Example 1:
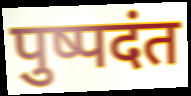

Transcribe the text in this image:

पुष्पदंत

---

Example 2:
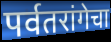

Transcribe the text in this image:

पर्वतरांगेचा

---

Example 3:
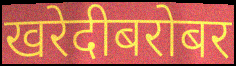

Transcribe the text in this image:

खरेदीबरोबर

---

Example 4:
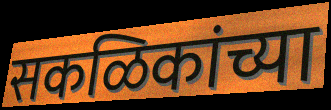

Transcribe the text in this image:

सकळिकांच्या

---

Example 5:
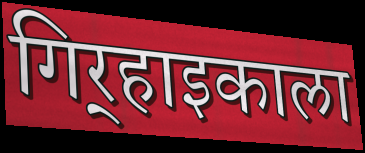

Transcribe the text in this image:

गिर्हाइकाला